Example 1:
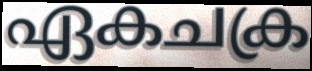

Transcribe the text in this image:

ഏകചക്ര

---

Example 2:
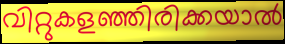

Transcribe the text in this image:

വിറ്റുകളഞ്ഞിരിക്കയാൽ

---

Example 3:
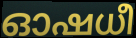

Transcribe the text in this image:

ഓഷധീ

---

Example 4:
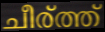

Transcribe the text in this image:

ചീര്ത്ത്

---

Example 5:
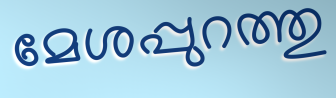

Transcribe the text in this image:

മേശപ്പുറത്തു